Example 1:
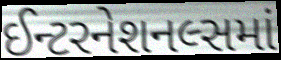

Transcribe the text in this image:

ઈન્ટરનેશનલ્સમાં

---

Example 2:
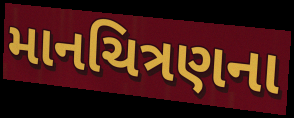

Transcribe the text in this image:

માનચિત્રણના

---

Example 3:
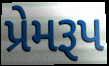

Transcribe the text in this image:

પ્રેમરૂપ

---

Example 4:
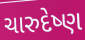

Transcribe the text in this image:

ચારુદેષ્ણ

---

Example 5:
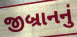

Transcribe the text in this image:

જીબ્રાનનું